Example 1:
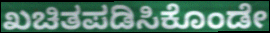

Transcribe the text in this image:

ಖಚಿತಪಡಿಸಿಕೊಂಡೇ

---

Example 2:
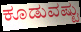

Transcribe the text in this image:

ಕೂಡುವಷ್ಟು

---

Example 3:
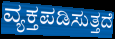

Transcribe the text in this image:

ವ್ಯಕ್ತಪಡಿಸುತ್ತದೆ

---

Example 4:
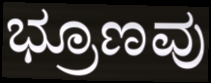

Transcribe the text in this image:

ಭ್ರೂಣವು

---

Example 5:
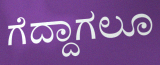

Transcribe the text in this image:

ಗೆದ್ದಾಗಲೂ